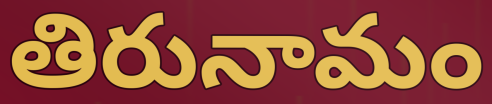
తిరునామం